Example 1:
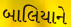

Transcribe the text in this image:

બાલિયાને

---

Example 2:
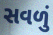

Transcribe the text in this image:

સવળું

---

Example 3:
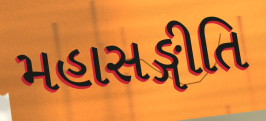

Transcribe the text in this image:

મહાસઙ્ગીતિ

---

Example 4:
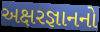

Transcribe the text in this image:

અક્ષરજ્ઞાનનો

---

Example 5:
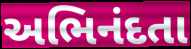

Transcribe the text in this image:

અભિનંદતા